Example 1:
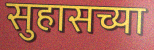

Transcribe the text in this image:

सुहासच्या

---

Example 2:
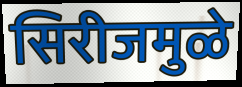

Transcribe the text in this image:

सिरीजमुळे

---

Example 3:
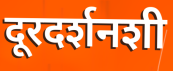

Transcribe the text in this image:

दूरदर्शनशी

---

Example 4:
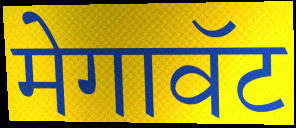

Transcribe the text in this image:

मेगावॅट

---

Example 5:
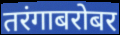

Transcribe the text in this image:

तरंगाबरोबर